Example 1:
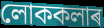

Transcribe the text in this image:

লোককলাৰ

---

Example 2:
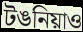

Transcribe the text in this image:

টঙনিয়াও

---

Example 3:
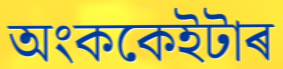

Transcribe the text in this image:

অংককেইটাৰ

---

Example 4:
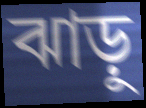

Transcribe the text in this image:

ঝাড়ু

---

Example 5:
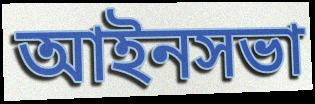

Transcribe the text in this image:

আইনসভা